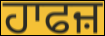
ਹਾਫਜ਼